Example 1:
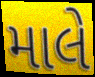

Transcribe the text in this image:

માલે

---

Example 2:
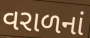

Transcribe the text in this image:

વરાળનાં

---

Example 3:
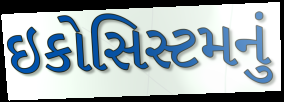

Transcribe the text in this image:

ઇકોસિસ્ટમનું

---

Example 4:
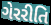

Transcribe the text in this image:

ગેરરીતિ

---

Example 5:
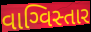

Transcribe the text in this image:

વાગ્વિસ્તાર